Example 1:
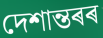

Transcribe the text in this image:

দেশান্তৰৰ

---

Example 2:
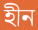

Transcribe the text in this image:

হীন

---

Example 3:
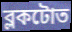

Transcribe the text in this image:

ব্লকটোত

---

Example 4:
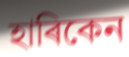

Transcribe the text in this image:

হাৰিকেন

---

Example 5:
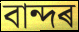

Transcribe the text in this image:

বান্দৰ